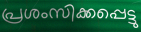
പ്രശംസിക്കപ്പെട്ടു